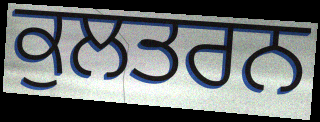
ਕੁਲਤਰਨ